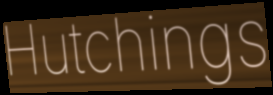
Hutchings